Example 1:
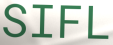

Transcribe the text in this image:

SIFL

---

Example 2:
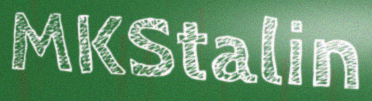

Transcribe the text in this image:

MKStalin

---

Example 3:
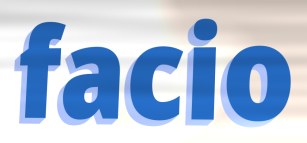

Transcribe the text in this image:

facio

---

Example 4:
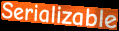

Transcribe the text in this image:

Serializable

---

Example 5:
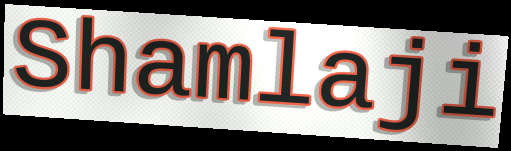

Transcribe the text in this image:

Shamlaji